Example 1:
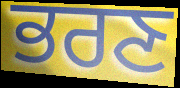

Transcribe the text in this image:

ਭਰਣ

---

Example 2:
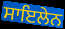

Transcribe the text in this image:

ਸਾਇਲੇਨ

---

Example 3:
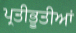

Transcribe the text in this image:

ਪ੍ਰਤੀਭੂਤੀਆਂ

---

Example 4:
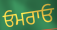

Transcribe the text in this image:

ਓਮਰਾਓ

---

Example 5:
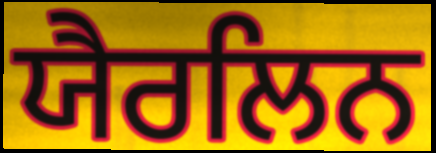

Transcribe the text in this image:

ਯੈਰਲਿਨ